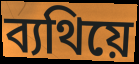
ব্যথিয়ে